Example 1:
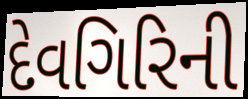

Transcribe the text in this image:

દેવગિરિની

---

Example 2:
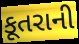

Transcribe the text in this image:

કૂતરાની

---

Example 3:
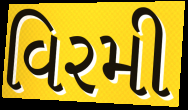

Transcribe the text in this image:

વિરમી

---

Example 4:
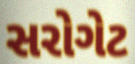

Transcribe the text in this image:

સરોગેટ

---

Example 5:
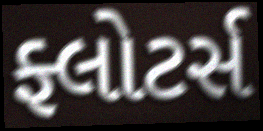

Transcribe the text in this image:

ફ્લોટર્સ